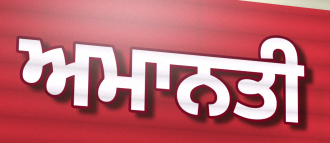
ਅਮਾਨਤੀ